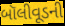
બૉલીવૂડની